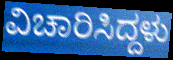
ವಿಚಾರಿಸಿದ್ದಳು